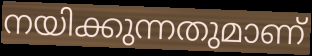
നയിക്കുന്നതുമാണ്